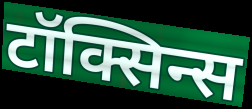
टॉक्सिन्स